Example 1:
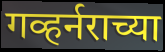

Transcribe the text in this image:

गव्हर्नराच्या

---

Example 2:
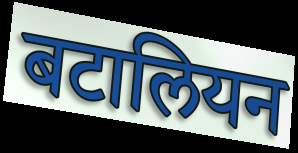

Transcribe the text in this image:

बटालियन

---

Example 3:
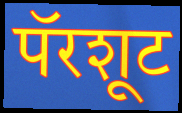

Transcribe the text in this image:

पॅरशूट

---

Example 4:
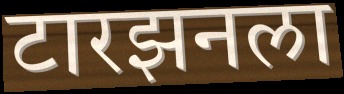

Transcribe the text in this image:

टारझनला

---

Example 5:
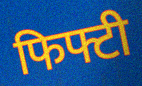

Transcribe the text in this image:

फिफ्टी